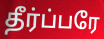
தீர்ப்பரே